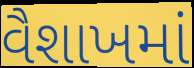
વૈશાખમાં